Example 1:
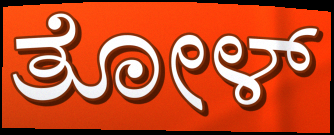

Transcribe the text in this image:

ತೋಳ್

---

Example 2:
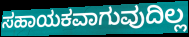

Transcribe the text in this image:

ಸಹಾಯಕವಾಗುವುದಿಲ್ಲ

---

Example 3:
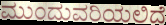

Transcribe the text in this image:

ಮುಂದುವರಿಯಲಿದೆ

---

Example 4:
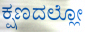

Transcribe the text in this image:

ಕ್ಷಣದಲ್ಲೋ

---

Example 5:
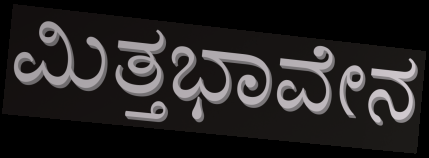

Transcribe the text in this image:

ಮಿತ್ತಭಾವೇನ